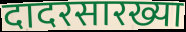
दादरसारख्या